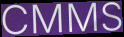
CMMS